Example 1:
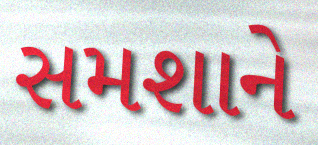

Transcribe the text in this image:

સમશાને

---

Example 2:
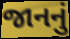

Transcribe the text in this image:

જાનનું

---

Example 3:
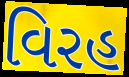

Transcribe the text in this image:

વિરહ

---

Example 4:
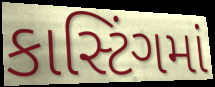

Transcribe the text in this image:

કાસ્ટિંગમાં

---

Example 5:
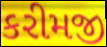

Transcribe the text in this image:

કરીમજી